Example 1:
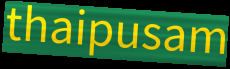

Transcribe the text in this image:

thaipusam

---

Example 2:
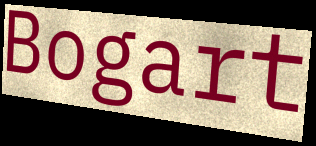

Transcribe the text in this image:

Bogart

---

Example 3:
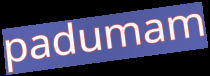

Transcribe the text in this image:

padumam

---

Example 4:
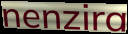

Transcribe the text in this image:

nenzira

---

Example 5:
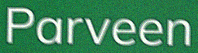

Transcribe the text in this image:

Parveen